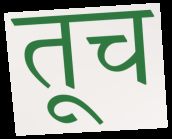
तूच